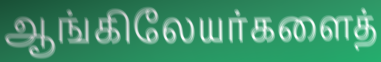
ஆங்கிலேயர்களைத்